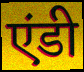
एंडी